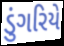
ડુંગરિયે